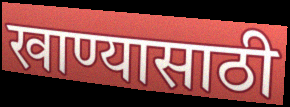
खाण्यासाठी